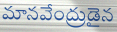
మానవేంద్రుడైన